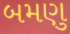
બમણુ